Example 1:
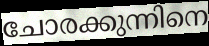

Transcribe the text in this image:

ചോരക്കുന്നിനെ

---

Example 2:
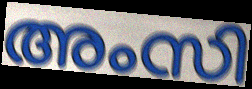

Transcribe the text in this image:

അംസി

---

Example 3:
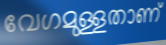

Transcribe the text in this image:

വേഗമുള്ളതാണ്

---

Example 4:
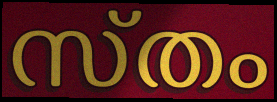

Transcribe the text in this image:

സ്‌തം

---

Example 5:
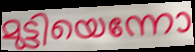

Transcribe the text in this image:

മുട്ടിയെന്നോ